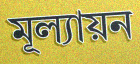
মূল্যায়ন